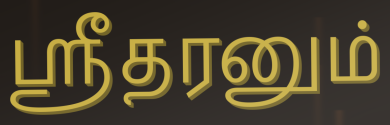
ஸ்ரீதரனும்